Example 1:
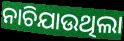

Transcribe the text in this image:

ନାଚିଯାଉଥିଲା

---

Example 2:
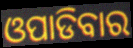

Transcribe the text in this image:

ଓପାଡିବାର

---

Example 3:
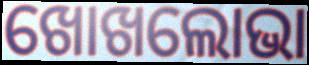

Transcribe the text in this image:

ଖୋଖଲୋଭା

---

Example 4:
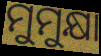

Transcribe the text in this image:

ମୁମୁକ୍ଷା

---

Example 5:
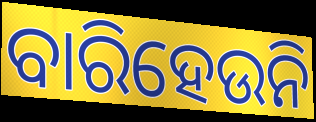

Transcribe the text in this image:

ବାରିହେଉନି